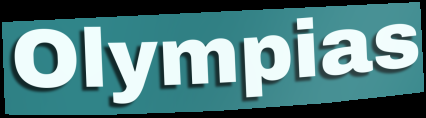
Olympias